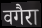
वगैरा